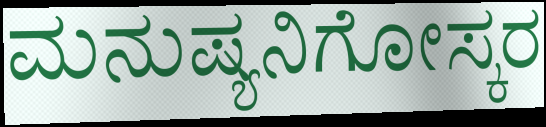
ಮನುಷ್ಯನಿಗೋಸ್ಕರ